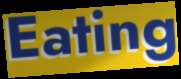
Eating